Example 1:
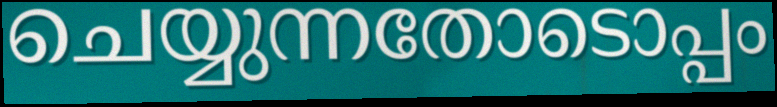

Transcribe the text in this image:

ചെയ്യുന്നതോടൊപ്പം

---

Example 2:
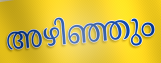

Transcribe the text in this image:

അഴിഞ്ഞും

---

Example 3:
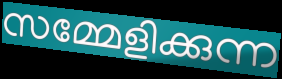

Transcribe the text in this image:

സമ്മേളിക്കുന്ന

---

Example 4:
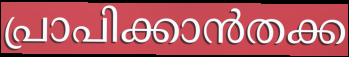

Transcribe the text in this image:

പ്രാപിക്കാൻതക്ക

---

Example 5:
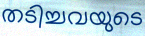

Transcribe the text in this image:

തടിച്ചവയുടെ